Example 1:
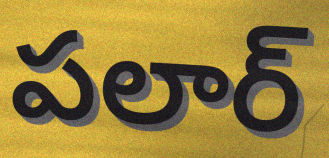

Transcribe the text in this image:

పలార్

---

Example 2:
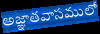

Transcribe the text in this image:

అజ్ఞాతవాసములో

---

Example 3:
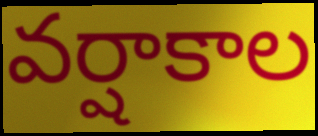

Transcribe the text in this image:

వర్షాకాల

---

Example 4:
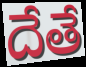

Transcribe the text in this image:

దేతే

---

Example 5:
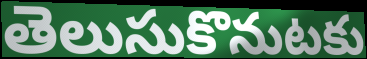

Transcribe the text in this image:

తెలుసుకొనుటకు